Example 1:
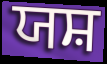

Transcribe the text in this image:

ਯਸ਼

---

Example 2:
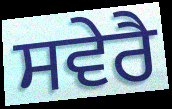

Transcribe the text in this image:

ਸਵੇਰੈ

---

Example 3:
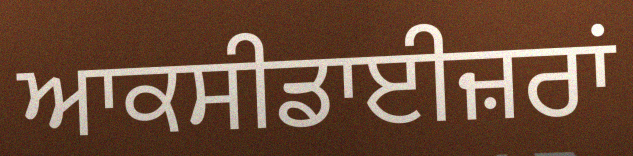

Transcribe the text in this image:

ਆਕਸੀਡਾਈਜ਼ਰਾਂ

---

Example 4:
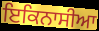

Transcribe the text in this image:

ਇਕਿਨਾਸੀਆ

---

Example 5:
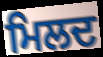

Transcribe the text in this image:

ਮਿਲਦ